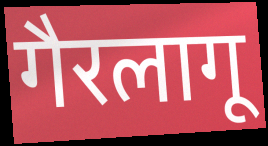
गैरलागू